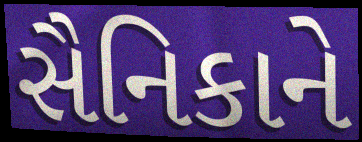
સૈનિકાને